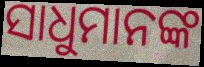
ସାଧୁମାନଙ୍କ